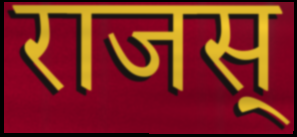
राजस्